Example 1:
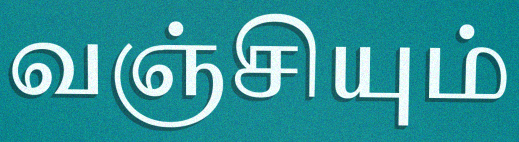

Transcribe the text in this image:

வஞ்சியும்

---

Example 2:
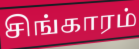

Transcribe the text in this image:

சிங்காரம்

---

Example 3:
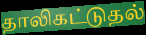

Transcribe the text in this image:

தாலிகட்டுதல்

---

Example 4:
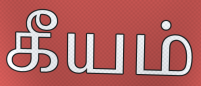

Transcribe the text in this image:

கீயம்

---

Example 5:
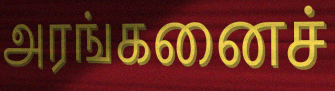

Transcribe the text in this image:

அரங்கனைச்